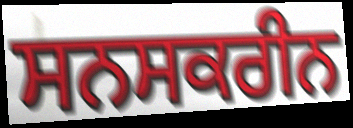
ਸਨਸਕਰੀਨ